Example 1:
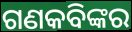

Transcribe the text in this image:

ଗଣକବିଙ୍କର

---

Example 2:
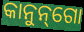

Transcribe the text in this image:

କାନୁନ୍‌ଗୋ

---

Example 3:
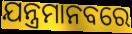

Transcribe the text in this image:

ଯନ୍ତ୍ରମାନବରେ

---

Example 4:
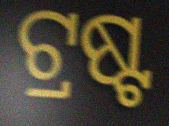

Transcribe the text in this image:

ଟ୍ରଷ୍ଟ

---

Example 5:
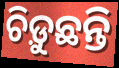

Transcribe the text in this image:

ଚିଡ଼ୁଛନ୍ତି